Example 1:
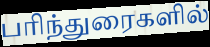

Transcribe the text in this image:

பரிந்துரைகளில்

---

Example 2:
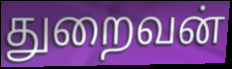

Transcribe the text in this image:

துறைவன்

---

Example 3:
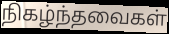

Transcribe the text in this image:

நிகழ்ந்தவைகள்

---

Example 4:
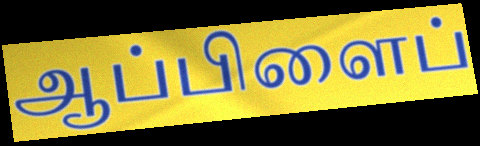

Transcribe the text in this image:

ஆப்பிளைப்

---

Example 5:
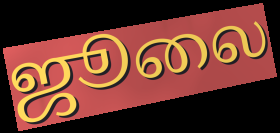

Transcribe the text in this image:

ஜூலை